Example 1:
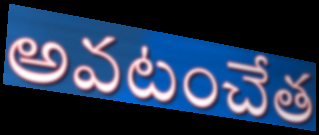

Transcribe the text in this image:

అవటంచేత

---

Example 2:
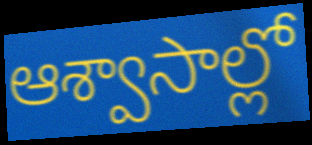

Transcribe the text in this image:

ఆశ్వాసాల్లో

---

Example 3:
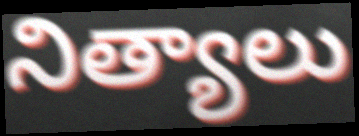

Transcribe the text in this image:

నిత్యాలు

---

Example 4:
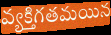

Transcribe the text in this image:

వ్యక్తిగతమయిన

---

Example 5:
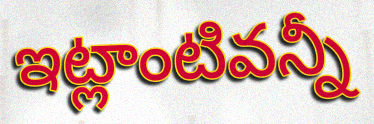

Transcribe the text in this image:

ఇట్లాంటివన్నీ